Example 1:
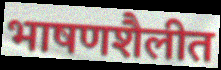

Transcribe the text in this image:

भाषणशैलीत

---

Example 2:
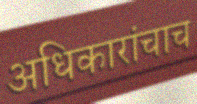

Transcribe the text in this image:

अधिकारांचाच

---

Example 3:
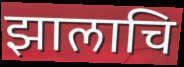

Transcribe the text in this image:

झालाचि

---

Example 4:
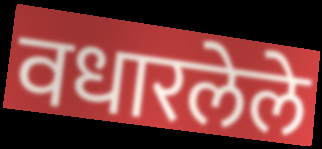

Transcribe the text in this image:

वधारलेले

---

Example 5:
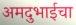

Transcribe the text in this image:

अमदुभाईचा